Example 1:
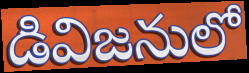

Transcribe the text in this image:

డివిజనులో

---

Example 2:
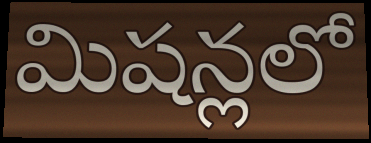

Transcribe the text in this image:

మిషన్లలో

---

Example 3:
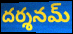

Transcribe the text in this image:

దర్శనమ్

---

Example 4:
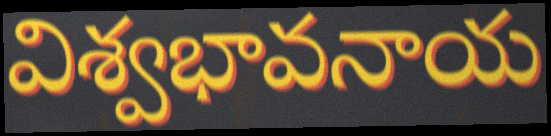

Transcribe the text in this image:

విశ్వభావనాయ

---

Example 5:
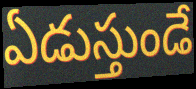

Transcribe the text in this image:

ఏడుస్తుండే